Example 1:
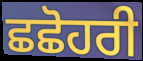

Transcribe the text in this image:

ਛਛੋਹਰੀ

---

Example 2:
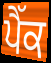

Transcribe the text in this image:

ਪੈੱਕ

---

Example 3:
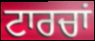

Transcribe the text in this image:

ਟਾਰਚਾਂ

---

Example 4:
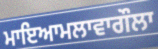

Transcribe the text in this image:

ਮਾਇਆਮਲਾਵਾਗੌਲਾ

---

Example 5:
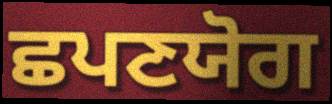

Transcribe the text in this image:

ਛਪਣਯੋਗ